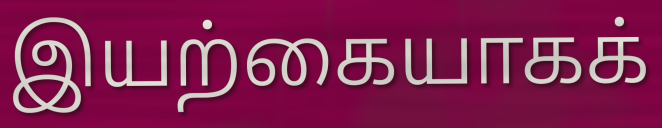
இயற்கையாகக்